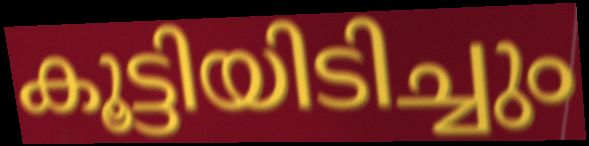
കൂട്ടിയിടിച്ചും